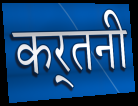
कर्तनी